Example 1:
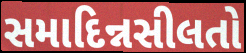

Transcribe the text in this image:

સમાદિન્નસીલતો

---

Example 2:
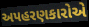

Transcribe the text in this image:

અપહરણકારોએ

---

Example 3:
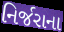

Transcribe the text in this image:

નિર્જરાના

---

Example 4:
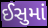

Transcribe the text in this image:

ઈસુમાં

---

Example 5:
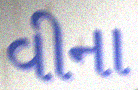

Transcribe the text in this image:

વીના